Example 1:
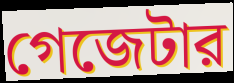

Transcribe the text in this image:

গেজেটার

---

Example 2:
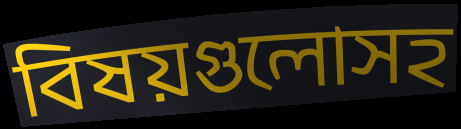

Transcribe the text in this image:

বিষয়গুলোসহ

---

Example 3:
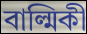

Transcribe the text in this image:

বাল্মিকী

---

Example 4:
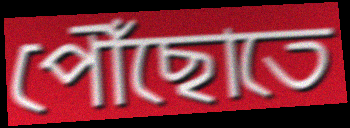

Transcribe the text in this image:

পৌঁছোতে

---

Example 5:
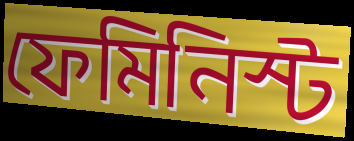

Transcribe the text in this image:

ফেমিনিস্ট